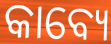
କାବ୍ୟେ